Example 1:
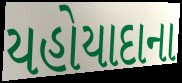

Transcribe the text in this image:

યહોયાદાના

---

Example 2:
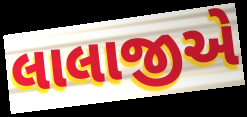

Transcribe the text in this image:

લાલાજીએ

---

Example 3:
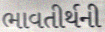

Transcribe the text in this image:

ભાવતીર્થની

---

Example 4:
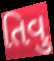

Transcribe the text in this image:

તિવુ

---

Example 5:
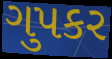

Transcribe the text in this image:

ગુપકર